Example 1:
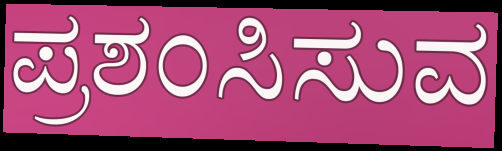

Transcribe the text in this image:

ಪ್ರಶಂಸಿಸುವ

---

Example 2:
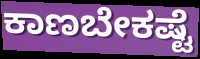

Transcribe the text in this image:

ಕಾಣಬೇಕಷ್ಟೆ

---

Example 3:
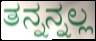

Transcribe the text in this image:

ತನ್ನನ್ನಲ್ಲ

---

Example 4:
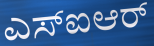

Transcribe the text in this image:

ಎಸ್ಐಆರ್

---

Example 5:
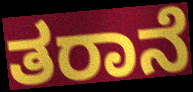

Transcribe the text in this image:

ತರಾನೆ